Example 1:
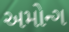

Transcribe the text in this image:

અમોન્ગ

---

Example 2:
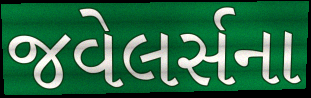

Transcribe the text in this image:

જવેલર્સના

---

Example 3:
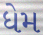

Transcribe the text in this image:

ધેમ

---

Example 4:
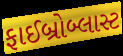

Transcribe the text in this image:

ફાઈબ્રોબ્લાસ્ટ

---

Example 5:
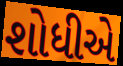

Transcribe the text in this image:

શોધીએ